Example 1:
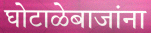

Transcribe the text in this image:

घोटाळेबाजांना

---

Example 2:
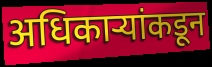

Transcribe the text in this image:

अधिकाऱ्यांकडून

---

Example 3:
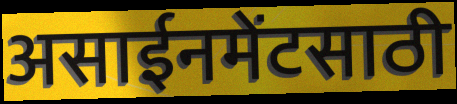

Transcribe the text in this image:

असाईनमेंटसाठी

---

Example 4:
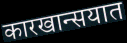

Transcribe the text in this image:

कारखान्सयात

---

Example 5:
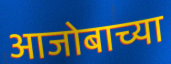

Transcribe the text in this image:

आजोबाच्या